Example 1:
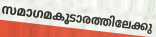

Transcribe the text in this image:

സമാഗമകൂടാരത്തിലേക്കു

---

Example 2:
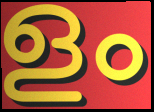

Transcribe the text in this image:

ളം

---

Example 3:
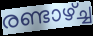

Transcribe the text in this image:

രണ്ടാഴ്ച്ച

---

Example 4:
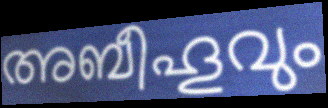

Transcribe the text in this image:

അബീഹൂവും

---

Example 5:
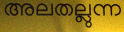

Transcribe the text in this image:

അലതല്ലുന്ന